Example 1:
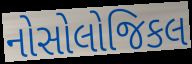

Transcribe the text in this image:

નોસોલોજિકલ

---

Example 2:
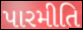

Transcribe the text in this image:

પારમીતિ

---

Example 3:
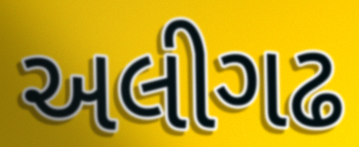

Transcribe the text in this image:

અલીગઢ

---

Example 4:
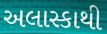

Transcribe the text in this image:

અલાસ્કાથી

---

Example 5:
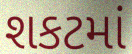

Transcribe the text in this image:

શકટમાં